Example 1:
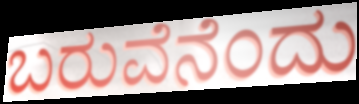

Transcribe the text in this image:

ಬರುವೆನೆಂದು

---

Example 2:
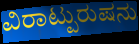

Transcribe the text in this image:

ವಿರಾಟ್ಪುರುಷನು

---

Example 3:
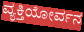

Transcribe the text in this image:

ವ್ಯಕ್ತಿಯೋರ್ವನ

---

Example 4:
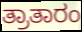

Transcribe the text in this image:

ತ್ರಾತಾರಂ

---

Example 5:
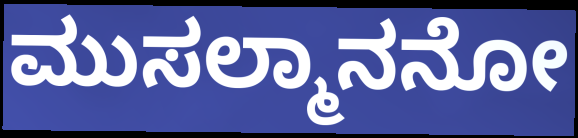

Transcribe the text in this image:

ಮುಸಲ್ಮಾನನೋ